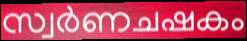
സ്വർണചഷകം